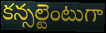
కన్సల్టెంటుగా